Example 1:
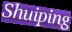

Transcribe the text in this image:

Shuiping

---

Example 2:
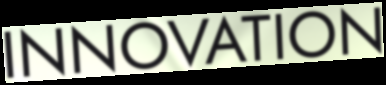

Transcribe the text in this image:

INNOVATION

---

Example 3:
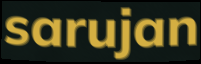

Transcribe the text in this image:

sarujan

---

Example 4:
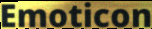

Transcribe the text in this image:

Emoticon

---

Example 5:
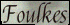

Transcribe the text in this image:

Foulkes